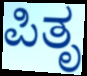
ಪಿತೃ